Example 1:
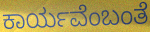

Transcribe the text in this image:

ಕಾರ್ಯವೆಂಬಂತೆ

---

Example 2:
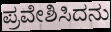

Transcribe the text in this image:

ಪ್ರವೇಶಿಸಿದನು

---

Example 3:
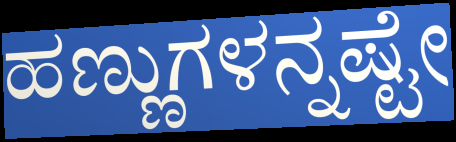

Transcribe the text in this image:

ಹಣ್ಣುಗಳನ್ನಷ್ಟೇ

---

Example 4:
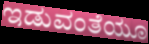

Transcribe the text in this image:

ಇಡುವಂತೆಯೂ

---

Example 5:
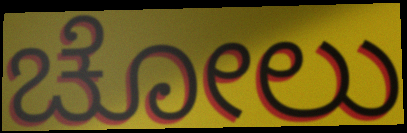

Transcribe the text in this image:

ಚೋಲು